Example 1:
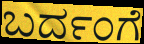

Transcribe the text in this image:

ಬರ್ದಂಗೆ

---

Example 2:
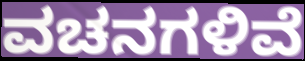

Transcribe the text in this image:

ವಚನಗಳಿವೆ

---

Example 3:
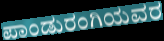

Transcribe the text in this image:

ಪಾಂಡುರಂಗಿಯವರ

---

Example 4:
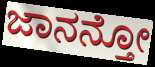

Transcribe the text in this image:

ಜಾನನ್ತೋ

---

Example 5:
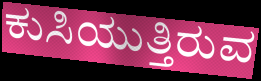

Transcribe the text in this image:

ಕುಸಿಯುತ್ತಿರುವ